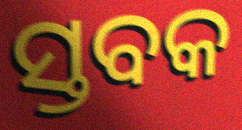
ସ୍ତବକ